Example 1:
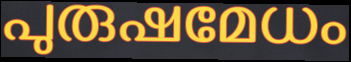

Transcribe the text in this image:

പുരുഷമേധം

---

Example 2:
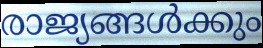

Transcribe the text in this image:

രാജ്യങ്ങൾക്കും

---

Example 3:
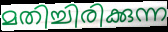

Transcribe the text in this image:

മതിച്ചിരിക്കുന്ന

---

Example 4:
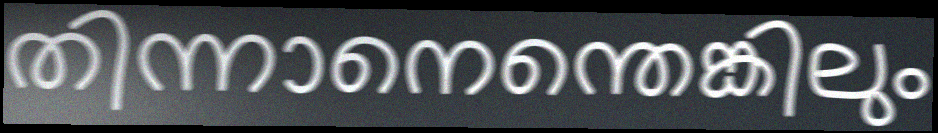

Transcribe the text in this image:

തിന്നാനെന്തെങ്കിലും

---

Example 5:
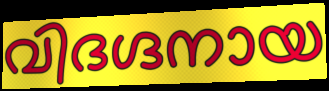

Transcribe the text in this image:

വിദഗ്ദനായ